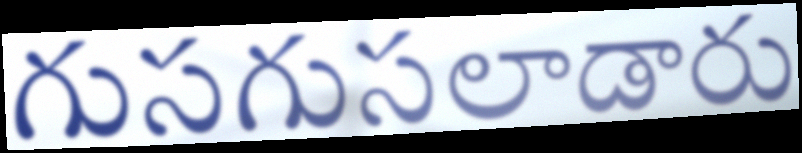
గుసగుసలాడారు